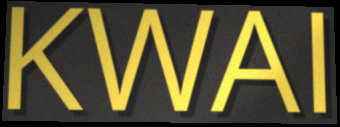
KWAI